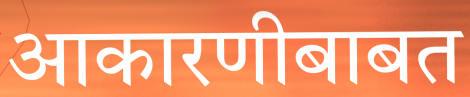
आकारणीबाबत